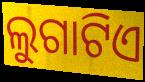
ଲୁଗାଟିଏ